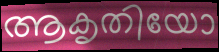
ആകൃതിയോ